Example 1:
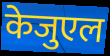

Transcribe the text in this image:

केजुएल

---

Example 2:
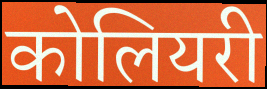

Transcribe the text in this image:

कोलियरी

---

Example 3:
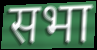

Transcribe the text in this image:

सभा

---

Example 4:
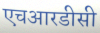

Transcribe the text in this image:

एचआरडीसी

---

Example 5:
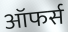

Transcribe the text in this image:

ऑफर्स